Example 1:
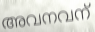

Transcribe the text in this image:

അവനവന്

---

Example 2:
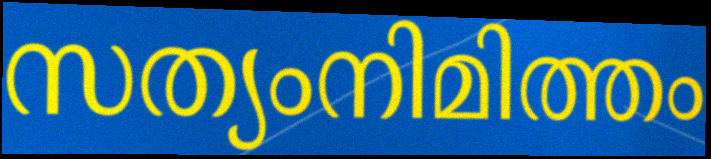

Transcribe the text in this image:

സത്യംനിമിത്തം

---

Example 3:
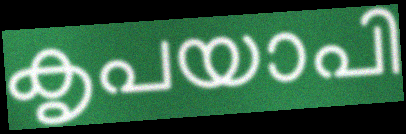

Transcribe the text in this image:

കൃപയാപി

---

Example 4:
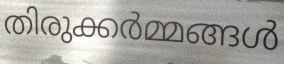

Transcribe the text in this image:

തിരുക്കർമ്മങ്ങൾ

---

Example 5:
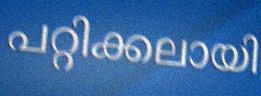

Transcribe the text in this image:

പറ്റിക്കലായി